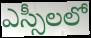
ఎస్సీలలో